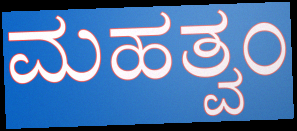
ಮಹತ್ವಂ